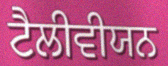
ਟੈਲੀਵੀਯਨ